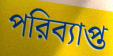
পরিব্যাপ্ত